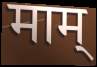
माम्